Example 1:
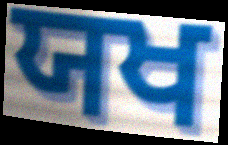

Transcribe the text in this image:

ਯਖ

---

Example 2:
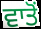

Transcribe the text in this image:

ਵਾਤੋਂ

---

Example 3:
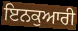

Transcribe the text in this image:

ਇਨਕੁਆਰੀ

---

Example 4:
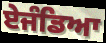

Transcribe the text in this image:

ਏਜੰਡਿਆ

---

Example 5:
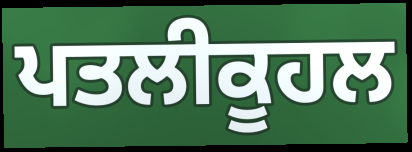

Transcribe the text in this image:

ਪਤਲੀਕੂਹਲ